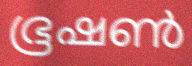
ഭൂഷൺ